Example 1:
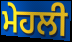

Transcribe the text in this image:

ਮੇਹਲੀ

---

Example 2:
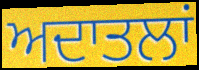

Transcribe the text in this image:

ਅਦਾਤਲਾਂ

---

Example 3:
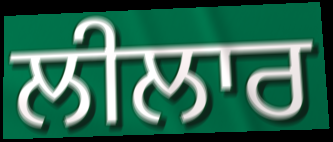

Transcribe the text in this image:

ਲੀਲਾਰ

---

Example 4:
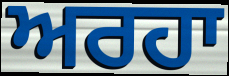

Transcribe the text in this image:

ਅਰਹਾ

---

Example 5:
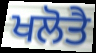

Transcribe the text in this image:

ਖਲੋਤੈ